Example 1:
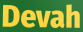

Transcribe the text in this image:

Devah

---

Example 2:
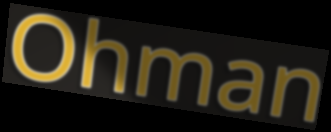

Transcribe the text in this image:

Ohman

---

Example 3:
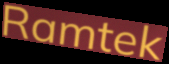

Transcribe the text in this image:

Ramtek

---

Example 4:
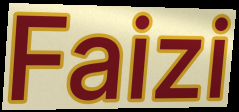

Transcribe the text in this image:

Faizi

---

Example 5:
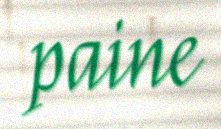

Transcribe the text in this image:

paine